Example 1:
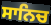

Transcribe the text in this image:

ਸਾਨਿਚ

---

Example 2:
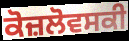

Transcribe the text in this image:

ਕੋਜ਼ਲੋਵਸਕੀ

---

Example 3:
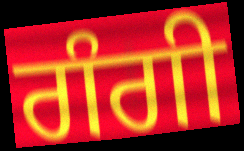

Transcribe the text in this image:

ਗੰਗੀ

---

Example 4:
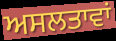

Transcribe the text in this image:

ਅਸਲਤਾਵਾਂ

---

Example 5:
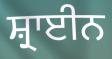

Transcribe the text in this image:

ਸ਼੍ਰਾਈਨ